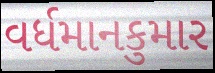
વર્ધમાનકુમાર